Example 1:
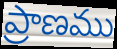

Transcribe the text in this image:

ప్రాణము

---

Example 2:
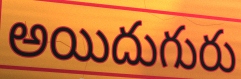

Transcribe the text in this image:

అయిదుగురు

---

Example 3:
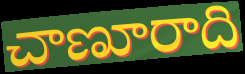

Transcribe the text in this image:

చాణూరాది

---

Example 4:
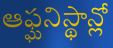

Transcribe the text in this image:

ఆఫ్ఘనిస్థాన్లో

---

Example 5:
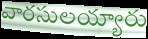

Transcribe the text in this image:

వారసులయ్యారు